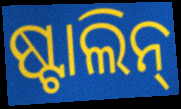
ଷ୍ଟାଲିନ୍